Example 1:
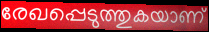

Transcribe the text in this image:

രേഖപ്പെടുത്തുകയാണ്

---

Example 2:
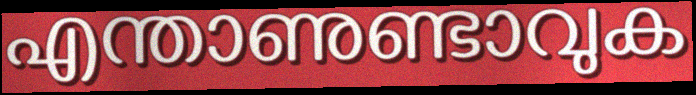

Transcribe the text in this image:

എന്താണുണ്ടാവുക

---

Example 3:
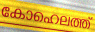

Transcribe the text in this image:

കോഹെലത്ത്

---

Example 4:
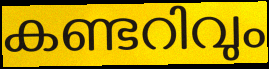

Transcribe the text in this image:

കണ്ടറിവും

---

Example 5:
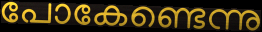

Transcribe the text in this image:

പോകേണ്ടെന്നു